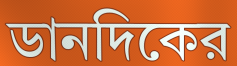
ডানদিকের